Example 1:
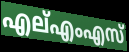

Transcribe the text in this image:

എല്എംഎസ്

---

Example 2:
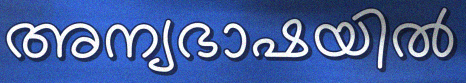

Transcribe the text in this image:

അന്യഭാഷയിൽ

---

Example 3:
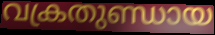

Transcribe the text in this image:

വക്രതുണ്ഡായ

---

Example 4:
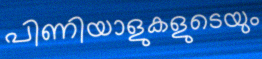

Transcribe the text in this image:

പിണിയാളുകളുടെയും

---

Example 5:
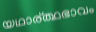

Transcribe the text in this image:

യഥാര്ത്ഥഭാവം